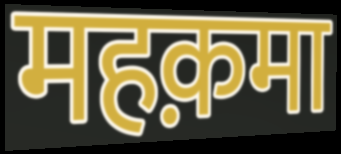
महक़मा